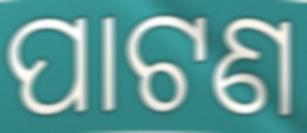
ପାଟଣ